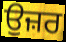
ਉਜ਼ਰ